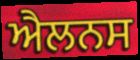
ਐਲਨਸ